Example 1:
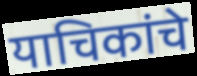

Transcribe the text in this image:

याचिकांचे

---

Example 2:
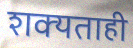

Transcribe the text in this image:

शक्‍यताही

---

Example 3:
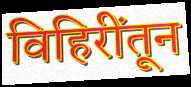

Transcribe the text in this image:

विहिरींतून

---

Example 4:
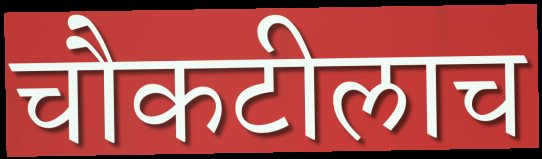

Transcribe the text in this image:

चौकटीलाच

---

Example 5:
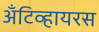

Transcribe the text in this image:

अँटिव्हायरस